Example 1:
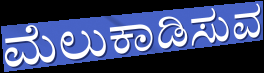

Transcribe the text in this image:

ಮೆಲುಕಾಡಿಸುವ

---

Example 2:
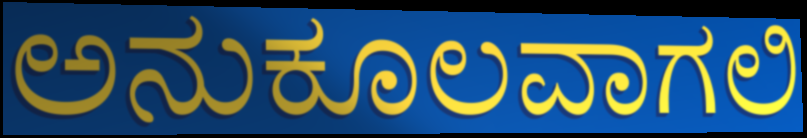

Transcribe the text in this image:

ಅನುಕೂಲವಾಗಲಿ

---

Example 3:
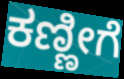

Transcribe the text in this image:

ಕಣ್ಣೀಗೆ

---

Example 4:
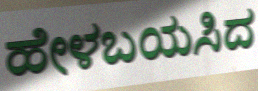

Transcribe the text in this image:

ಹೇಳಬಯಸಿದ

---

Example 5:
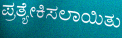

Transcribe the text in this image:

ಪ್ರತ್ಯೇಕಿಸಲಾಯಿತು